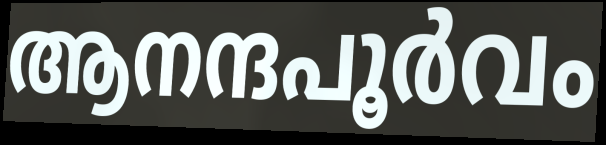
ആനന്ദപൂർവം